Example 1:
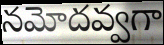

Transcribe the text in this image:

నమోదవ్వగా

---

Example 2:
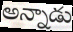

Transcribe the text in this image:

అన్నాడు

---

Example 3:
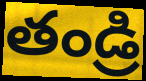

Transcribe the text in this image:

తండ్రి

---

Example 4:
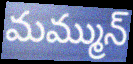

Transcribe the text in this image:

మమ్మున్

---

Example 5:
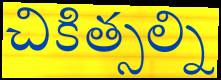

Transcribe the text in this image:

చికిత్సల్ని